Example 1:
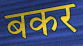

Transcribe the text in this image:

बकर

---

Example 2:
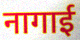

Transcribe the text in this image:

नागाई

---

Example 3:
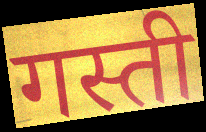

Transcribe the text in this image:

गस्ती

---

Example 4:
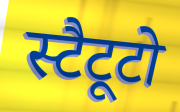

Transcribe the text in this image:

स्टैटूटो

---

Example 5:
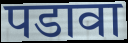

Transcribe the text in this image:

पडावा